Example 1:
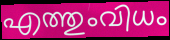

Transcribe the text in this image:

എത്തുംവിധം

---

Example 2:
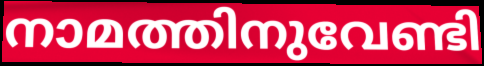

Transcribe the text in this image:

നാമത്തിനുവേണ്ടി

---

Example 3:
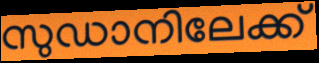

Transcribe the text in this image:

സുഡാനിലേക്ക്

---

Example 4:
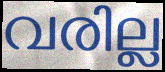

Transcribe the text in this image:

വരില്ല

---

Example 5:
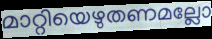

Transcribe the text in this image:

മാറ്റിയെഴുതണമല്ലോ